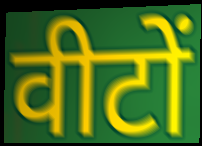
वीटों